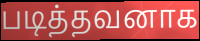
படித்தவனாக